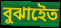
বুঝাইেত